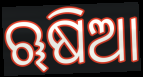
ୠଷିଆ